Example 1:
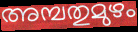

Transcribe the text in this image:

അമ്പതുമുഴം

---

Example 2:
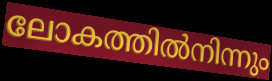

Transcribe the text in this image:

ലോകത്തിൽനിന്നും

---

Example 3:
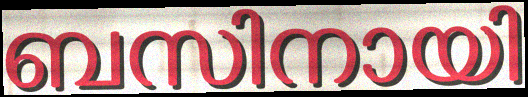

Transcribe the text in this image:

ബസിനായി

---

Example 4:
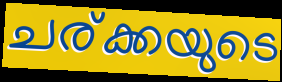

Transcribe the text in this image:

ചര്ക്കയുടെ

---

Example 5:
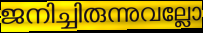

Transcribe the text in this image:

ജനിച്ചിരുന്നുവല്ലോ